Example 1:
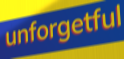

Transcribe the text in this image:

unforgetful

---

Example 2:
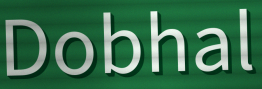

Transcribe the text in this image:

Dobhal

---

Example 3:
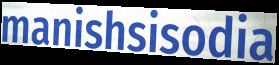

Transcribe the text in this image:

manishsisodia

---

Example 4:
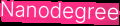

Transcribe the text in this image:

Nanodegree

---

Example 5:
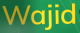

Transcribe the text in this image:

Wajid